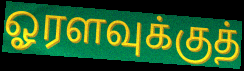
ஓரளவுக்குத்